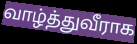
வாழ்த்துவீராக